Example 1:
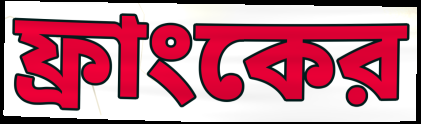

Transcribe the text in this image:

ফ্রাংকের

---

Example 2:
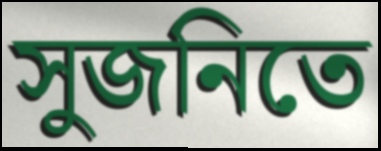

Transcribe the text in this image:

সুজনিতে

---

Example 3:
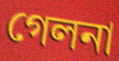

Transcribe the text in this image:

গেলনা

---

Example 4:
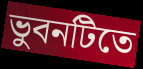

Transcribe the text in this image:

ভুবনটিতে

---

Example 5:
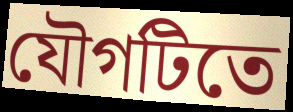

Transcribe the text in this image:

যৌগটিতে